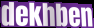
dekhben